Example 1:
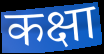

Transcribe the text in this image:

कक्षा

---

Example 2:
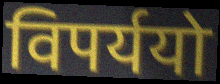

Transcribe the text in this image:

विपर्ययो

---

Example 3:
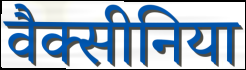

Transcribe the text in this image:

वैक्सीनिया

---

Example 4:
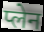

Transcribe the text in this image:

प्लेन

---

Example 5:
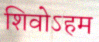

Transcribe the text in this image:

शिवोऽहम